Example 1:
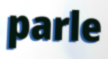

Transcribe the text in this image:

parle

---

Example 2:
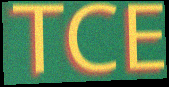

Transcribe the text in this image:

TCE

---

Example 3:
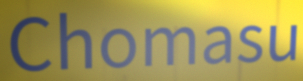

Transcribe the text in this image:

Chomasu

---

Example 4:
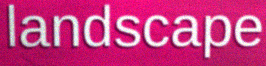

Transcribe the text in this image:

landscape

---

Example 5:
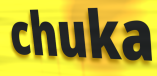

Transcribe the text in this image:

chuka